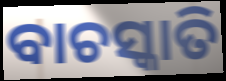
ବାଚସ୍କାତି